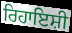
ਰਿਹਾਇਸ਼ੀ